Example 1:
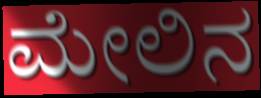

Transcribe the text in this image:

ಮೇಲಿನ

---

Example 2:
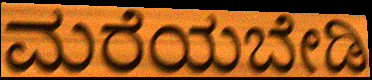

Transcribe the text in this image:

ಮರೆಯಬೇಡಿ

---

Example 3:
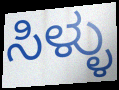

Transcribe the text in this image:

ಸಿಳ್ಳು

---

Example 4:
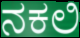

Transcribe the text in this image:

ನಕಲಿ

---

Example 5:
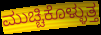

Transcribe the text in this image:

ಮುಚ್ಚಿಕೊಳ್ಳುತ್ತ